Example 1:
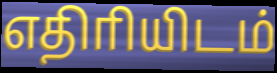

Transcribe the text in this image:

எதிரியிடம்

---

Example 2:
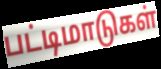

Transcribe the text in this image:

பட்டிமாடுகள்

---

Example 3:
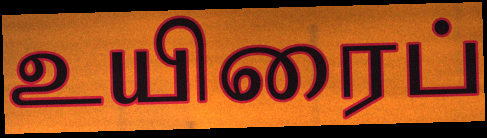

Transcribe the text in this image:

உயிரைப்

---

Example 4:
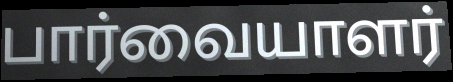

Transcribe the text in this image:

பார்வையாளர்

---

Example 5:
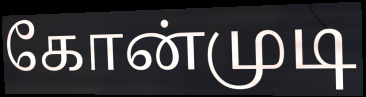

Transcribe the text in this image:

கோன்முடி